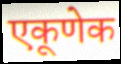
एकूणेक